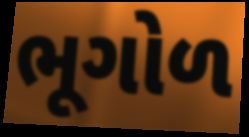
ભૂગોળ